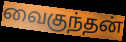
வைகுந்தன்